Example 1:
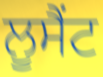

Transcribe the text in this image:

ਲੂਸੈਂਟ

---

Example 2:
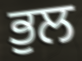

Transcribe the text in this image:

ਭੁਲ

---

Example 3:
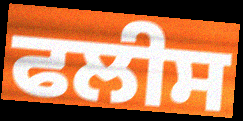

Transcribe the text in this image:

ਫਲੀਸ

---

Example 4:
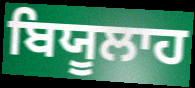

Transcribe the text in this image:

ਬਿਯੂਲਾਹ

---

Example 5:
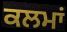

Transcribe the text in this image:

ਕਲਮਾਂ